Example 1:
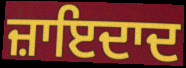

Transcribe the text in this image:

ਜ਼ਾਇਦਾਦ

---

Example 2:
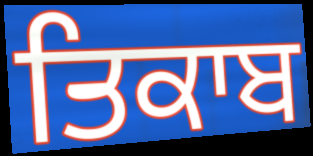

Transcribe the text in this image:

ਤਿਕਾਬ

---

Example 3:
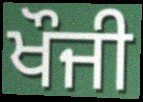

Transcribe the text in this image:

ਖੌਜੀ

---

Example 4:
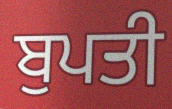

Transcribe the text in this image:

ਬੁਪਤੀ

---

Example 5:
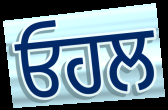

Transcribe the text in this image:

ਓਹਲ